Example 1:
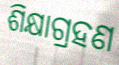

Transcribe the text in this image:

ଶିକ୍ଷାଗ୍ରହଣ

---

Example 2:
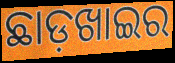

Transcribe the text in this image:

ଛାଡ଼ଖାଇର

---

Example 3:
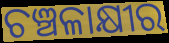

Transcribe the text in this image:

ଚଞ୍ଚଳାକ୍ଷୀର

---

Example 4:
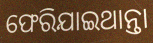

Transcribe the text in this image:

ଫେରିଯାଇଥାନ୍ତା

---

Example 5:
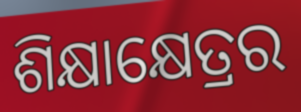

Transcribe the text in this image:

ଶିକ୍ଷାକ୍ଷେତ୍ରର